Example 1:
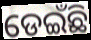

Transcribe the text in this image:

ଡେଇଁଛି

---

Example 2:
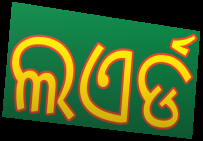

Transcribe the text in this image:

ଲଏର୍ଡ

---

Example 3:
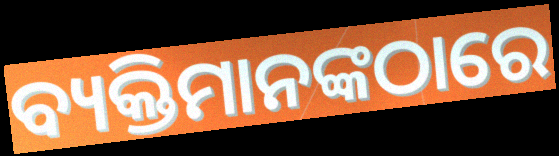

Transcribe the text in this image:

ବ୍ୟକ୍ତିମାନଙ୍କଠାରେ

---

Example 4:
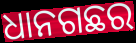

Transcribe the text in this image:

ଧାନଗଛର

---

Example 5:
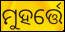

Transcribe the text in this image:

ମୁହର୍ତ୍ତେ